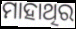
ମାହାଥିର